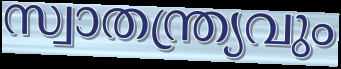
സ്വാതന്ത്ര്യവും